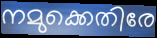
നമുക്കെതിരേ